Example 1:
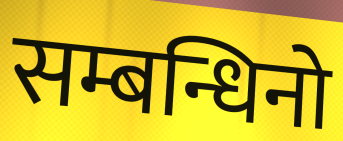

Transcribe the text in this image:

सम्बन्धिनो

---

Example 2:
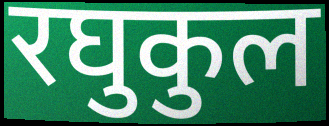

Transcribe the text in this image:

रघुकुल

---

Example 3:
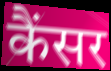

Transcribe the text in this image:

कैंसर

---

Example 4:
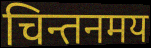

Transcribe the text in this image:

चिन्तनमय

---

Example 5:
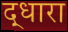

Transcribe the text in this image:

द्धारा